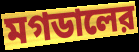
মগডালের